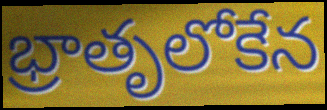
భ్రాతృలోకేన